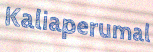
Kaliaperumal